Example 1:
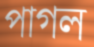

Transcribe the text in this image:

পাগল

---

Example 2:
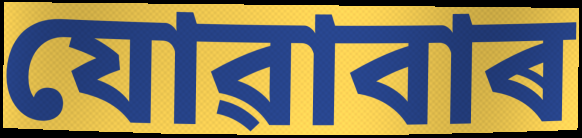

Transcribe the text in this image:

যোৱাবাৰ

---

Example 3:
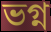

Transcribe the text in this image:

ভগ্ন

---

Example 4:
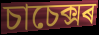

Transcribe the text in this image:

চাচেক্সৰ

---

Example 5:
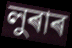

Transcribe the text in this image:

লুৰাৰ